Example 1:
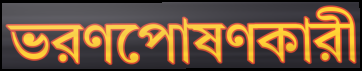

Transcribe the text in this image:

ভরণপোষণকারী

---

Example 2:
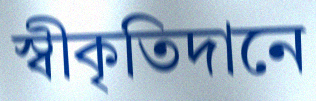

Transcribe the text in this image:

স্বীকৃতিদানে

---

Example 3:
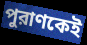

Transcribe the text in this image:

পুরাণকেই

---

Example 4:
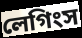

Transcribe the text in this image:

লেগিংস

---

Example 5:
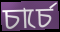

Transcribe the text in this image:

চার্চে